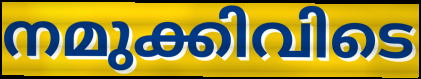
നമുക്കിവിടെ